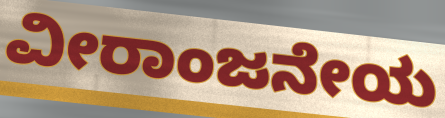
ವೀರಾಂಜನೇಯ